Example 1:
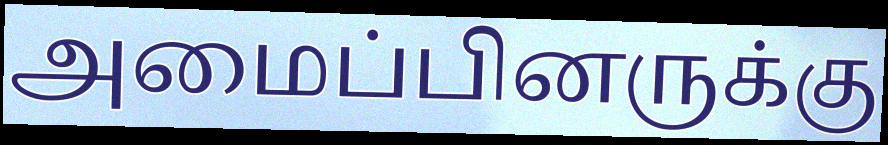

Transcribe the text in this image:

அமைப்பினருக்கு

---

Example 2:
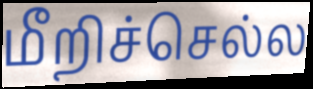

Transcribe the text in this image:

மீறிச்செல்ல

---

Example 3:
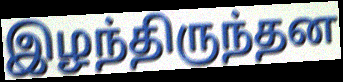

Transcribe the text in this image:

இழந்திருந்தன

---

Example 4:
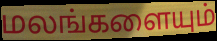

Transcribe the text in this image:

மலங்களையும்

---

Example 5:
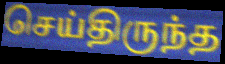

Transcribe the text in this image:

செய்திருந்த